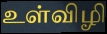
உள்விழி